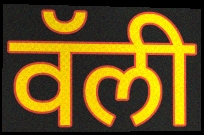
वॅली